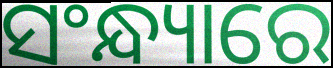
ସଂନ୍ଧ୍ୟାରେ